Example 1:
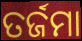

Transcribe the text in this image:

ତର୍ଜମା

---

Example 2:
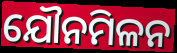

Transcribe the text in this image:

ଯୌନମିଳନ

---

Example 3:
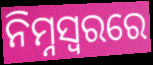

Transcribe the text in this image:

ନିମ୍ନସ୍ଵରରେ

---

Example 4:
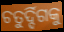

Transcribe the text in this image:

ଚତୁର୍ଦ୍ଦିଗକୁ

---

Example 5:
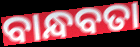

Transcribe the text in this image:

ବାନ୍ଧବତା